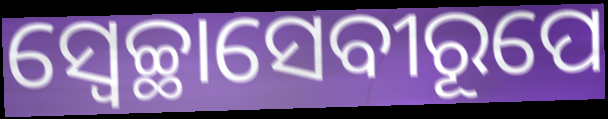
ସ୍ଵେଚ୍ଛାସେବୀରୂପେ